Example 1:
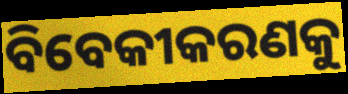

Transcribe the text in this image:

ବିବେକୀକରଣକୁ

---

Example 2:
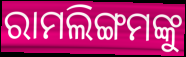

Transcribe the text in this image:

ରାମଲିଙ୍ଗମଙ୍କୁ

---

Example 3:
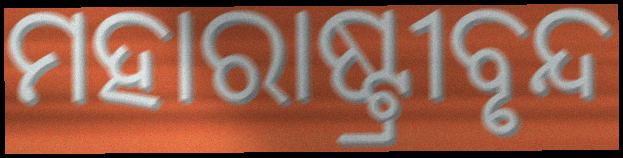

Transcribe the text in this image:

ମହାରାଷ୍ଟ୍ରୀବୃନ୍ଦ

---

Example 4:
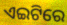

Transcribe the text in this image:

ଏଇଟିରେ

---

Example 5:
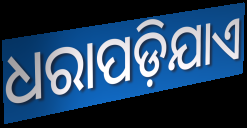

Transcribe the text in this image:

ଧରାପଡ଼ିଯାଏ